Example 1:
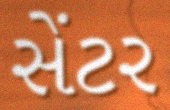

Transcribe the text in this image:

સેંટર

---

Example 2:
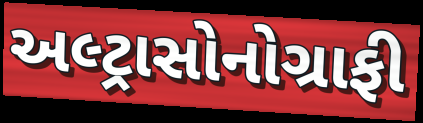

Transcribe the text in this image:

અલ્ટ્રાસોનોગ્રાફી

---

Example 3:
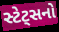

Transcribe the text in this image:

સ્ટેટ્સનો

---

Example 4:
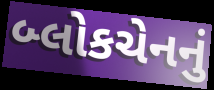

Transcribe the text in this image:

બ્લોકચેનનું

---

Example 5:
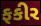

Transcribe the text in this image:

ફકીર